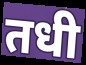
तधी